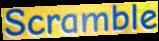
Scramble